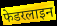
फेडरलाइन